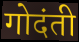
गोदंती